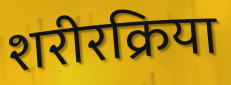
शरीरक्रिया